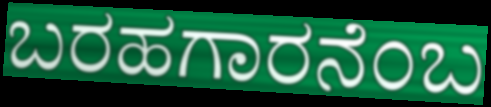
ಬರಹಗಾರನೆಂಬ